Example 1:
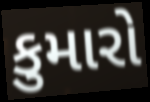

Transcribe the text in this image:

કુમારો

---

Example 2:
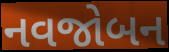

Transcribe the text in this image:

નવજોબન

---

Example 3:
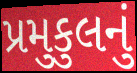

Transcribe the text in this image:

પ્રમુકુલનું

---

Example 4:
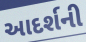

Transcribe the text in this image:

આદર્શની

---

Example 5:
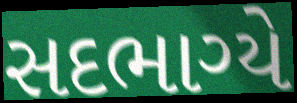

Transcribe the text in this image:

સદભાગ્યે